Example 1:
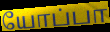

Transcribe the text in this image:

யோப்பா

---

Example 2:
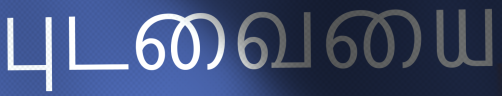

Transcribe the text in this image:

புடவையை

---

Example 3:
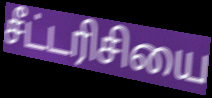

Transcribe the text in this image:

சீட்டரிசியை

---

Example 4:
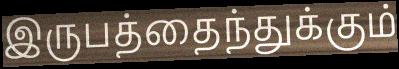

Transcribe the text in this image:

இருபத்தைந்துக்கும்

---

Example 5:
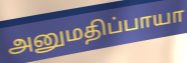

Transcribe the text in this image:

அனுமதிப்பாயா